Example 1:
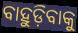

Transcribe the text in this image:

ବାହୁଡ଼ିବାକୁ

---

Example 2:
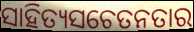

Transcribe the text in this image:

ସାହିତ୍ୟସଚେତନତାର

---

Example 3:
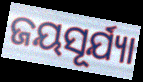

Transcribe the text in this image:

ଜୟସୂର୍ଯ୍ୟା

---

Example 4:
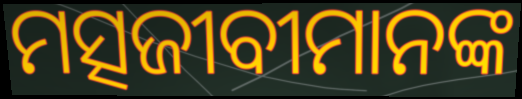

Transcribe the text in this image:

ମତ୍ସଜୀବୀମାନଙ୍କ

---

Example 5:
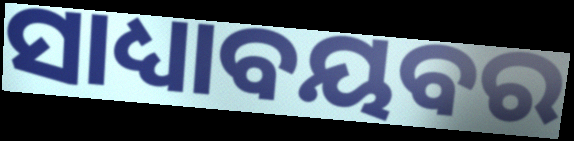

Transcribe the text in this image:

ସାଧ୍ୟାବୟବର